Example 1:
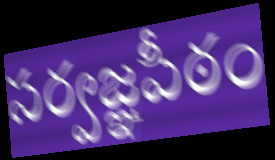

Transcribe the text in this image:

సర్వజ్ఞపీఠం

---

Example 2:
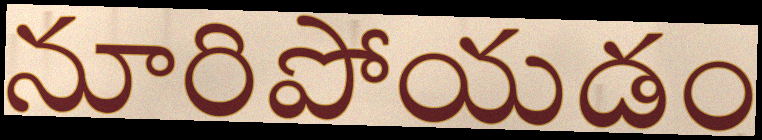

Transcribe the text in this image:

నూరిపోయడం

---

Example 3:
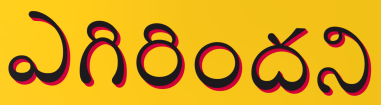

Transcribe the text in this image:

ఎగిరిందని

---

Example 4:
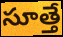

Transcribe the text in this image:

సూత్తే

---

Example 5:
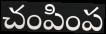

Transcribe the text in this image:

చంపింప